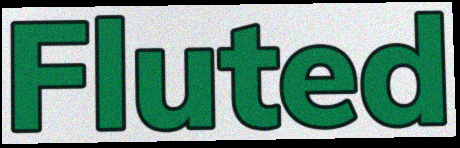
Fluted